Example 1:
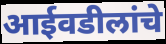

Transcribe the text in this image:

आईवडीलांचे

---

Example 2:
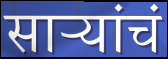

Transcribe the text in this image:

साऱ्यांचं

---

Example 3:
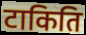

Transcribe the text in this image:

टाकिति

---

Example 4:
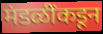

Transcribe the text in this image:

मंडळींकडून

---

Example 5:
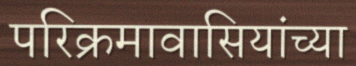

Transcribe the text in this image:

परिक्रमावासियांच्या